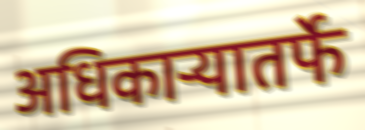
अधिकाऱ्यातर्फे